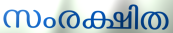
സംരക്ഷിത